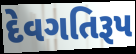
દેવગતિરૂપ